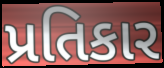
પ્રતિકાર